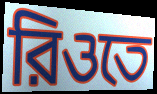
রিওতে